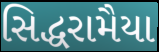
સિદ્ધરામૈયા